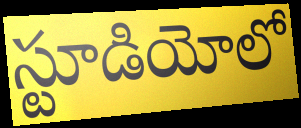
స్టూడియోలో